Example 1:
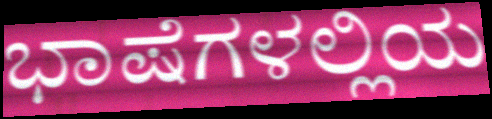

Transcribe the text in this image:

ಭಾಷೆಗಳಲ್ಲಿಯ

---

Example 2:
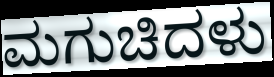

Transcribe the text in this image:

ಮಗುಚಿದಳು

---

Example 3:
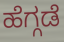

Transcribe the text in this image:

ಹೆಗ್ಗಡೆ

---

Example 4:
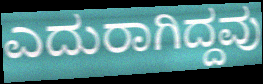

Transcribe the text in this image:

ಎದುರಾಗಿದ್ದವು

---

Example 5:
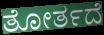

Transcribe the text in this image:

ತೋರ್ತದೆ